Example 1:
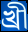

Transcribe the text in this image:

খ্ৰী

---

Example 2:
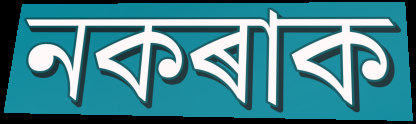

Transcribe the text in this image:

নকৰাক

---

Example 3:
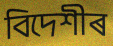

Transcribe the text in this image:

বিদেশীৰ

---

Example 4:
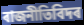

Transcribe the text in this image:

ৰাজনীতিবিদৰ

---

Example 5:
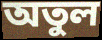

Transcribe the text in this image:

অতুল